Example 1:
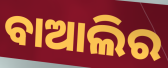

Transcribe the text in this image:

ବାଆଲିର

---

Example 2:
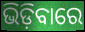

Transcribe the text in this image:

ଭିଡ଼ିବାରେ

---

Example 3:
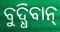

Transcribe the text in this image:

ବୁଦ୍ଧିବାନ୍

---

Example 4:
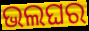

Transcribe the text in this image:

ଭଲଘର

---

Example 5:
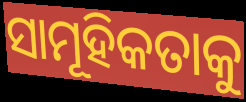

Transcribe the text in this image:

ସାମୂହିକତାକୁ